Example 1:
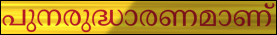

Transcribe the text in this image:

പുനരുദ്ധാരണമാണ്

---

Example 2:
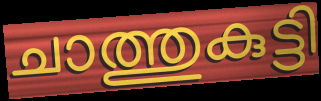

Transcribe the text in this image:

ചാത്തുകുട്ടി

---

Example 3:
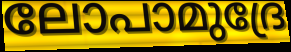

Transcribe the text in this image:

ലോപാമുദ്രേ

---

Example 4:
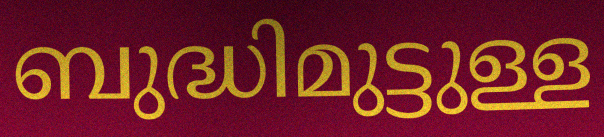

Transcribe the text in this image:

ബുദ്ധിമുട്ടുള്ള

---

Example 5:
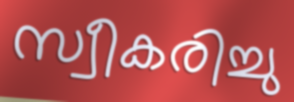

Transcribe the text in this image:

സ്വീകരിച്ചു